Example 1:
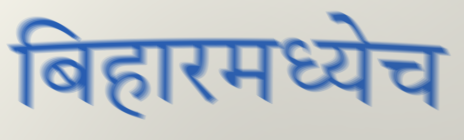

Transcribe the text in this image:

बिहारमध्येच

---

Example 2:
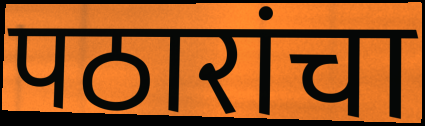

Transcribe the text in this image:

पठारांचा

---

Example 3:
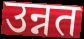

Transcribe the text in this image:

उन्नत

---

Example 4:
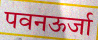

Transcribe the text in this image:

पवनऊर्जा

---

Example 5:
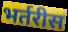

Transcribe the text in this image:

भर्तरीस